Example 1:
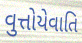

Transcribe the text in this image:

વુત્તોયેવાતિ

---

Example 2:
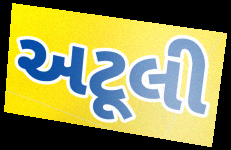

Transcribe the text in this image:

અટૂલી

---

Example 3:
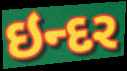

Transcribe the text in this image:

ઇન્દર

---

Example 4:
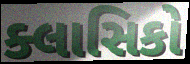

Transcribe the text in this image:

ક્લાસિકો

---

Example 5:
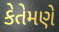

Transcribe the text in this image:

કેતેમણે